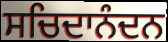
ਸਚਿਦਾਨੰਦਨ